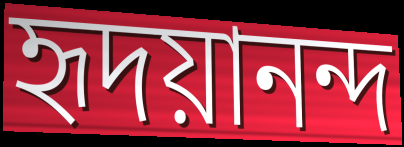
হৃদয়ানন্দ